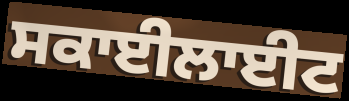
ਸਕਾਈਲਾਈਟ